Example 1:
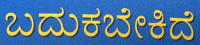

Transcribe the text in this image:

ಬದುಕಬೇಕಿದೆ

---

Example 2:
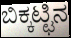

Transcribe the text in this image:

ಬಿಕ್ಕಟ್ಟಿನ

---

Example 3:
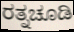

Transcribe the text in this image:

ರತ್ನಚೂಡಿ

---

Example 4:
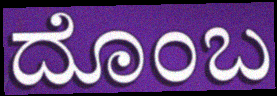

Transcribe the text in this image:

ದೊಂಬ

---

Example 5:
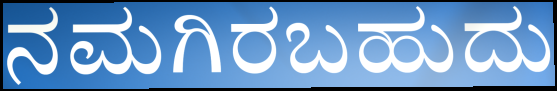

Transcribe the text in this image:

ನಮಗಿರಬಹುದು